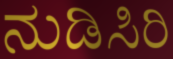
ನುಡಿಸಿರಿ